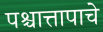
पश्चात्तापाचे